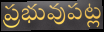
ప్రభువుపట్ల